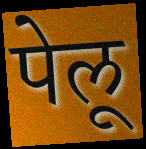
पेलू